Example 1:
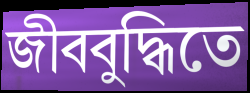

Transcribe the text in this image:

জীববুদ্ধিতে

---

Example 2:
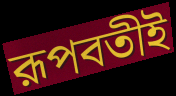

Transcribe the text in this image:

রূপবতীই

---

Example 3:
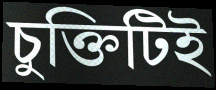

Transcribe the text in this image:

চুক্তিটিই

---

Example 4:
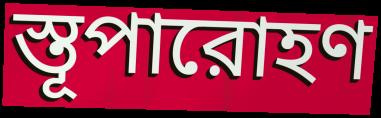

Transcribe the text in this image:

স্তূপারোহণ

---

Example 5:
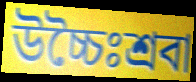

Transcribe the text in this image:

উচ্চৈঃশ্রবা